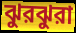
ঝুরঝুরা